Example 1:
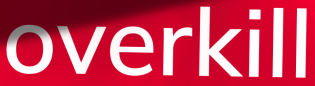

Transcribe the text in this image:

overkill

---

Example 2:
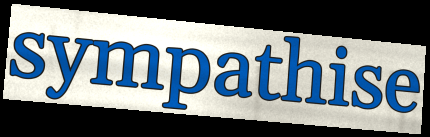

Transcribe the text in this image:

sympathise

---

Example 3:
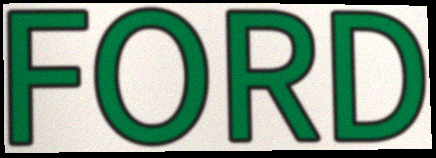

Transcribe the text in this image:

FORD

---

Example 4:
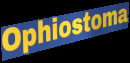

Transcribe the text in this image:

Ophiostoma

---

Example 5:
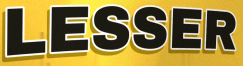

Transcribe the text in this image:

LESSER